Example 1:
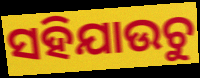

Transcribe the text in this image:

ସହିଯାଉଚୁ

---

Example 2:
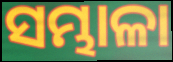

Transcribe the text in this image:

ସମ୍ଭାଳା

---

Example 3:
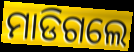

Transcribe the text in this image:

ମାଡିଗଲେ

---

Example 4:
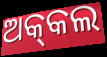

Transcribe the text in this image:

ଅକ୍‍କଲ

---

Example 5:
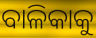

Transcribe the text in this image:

ବାଳିକାକୁ